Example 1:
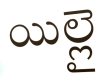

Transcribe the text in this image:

యిల్లై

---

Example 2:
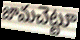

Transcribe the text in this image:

జామచెట్టూ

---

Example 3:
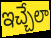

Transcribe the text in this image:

ఇచ్చేలా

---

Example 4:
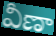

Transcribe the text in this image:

వీణా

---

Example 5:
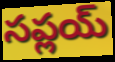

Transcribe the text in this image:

సప్లయ్